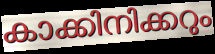
കാക്കിനിക്കറും